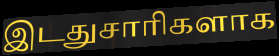
இடதுசாரிகளாக